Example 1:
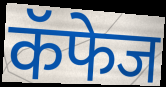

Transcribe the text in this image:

कॅफेज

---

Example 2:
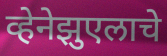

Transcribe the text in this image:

व्हेनेझुएलाचे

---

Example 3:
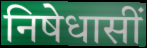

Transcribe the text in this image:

निषेधासीं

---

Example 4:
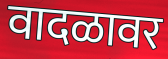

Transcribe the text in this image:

वादळावर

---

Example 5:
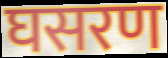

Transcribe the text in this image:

घसरण